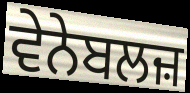
ਵੇਨੇਬਲਜ਼